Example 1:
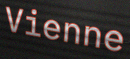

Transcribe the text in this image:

Vienne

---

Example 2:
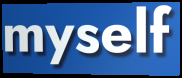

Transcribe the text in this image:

myself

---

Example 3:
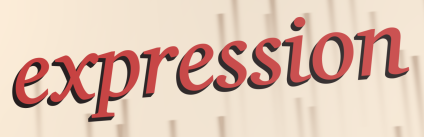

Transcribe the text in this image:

expression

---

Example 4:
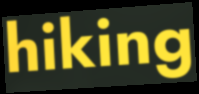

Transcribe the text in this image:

hiking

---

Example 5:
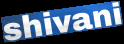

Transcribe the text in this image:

shivani